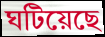
ঘটিয়েছে